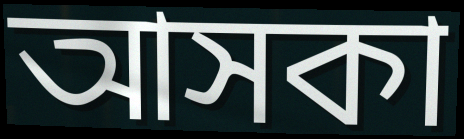
আসকা